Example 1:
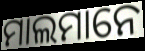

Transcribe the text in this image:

ମାଲମାନେ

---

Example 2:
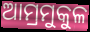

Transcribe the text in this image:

ଆମ୍ରମୁକୁଳ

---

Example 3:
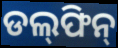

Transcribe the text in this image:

ଡଲ୍‍ଫିନ୍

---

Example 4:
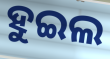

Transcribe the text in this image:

ହୁଇଲ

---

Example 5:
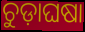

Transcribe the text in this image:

ଚୁଡ଼ାଘଷା